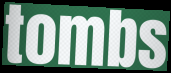
tombs